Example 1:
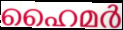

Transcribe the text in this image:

ഹൈമർ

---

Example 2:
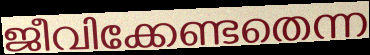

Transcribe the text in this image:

ജീവിക്കേണ്ടതെന്ന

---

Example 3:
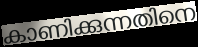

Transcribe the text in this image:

കാണിക്കുന്നതിനെ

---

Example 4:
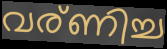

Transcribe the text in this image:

വര്ണിച്ച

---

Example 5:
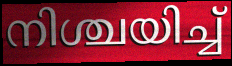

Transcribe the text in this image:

നിശ്ചയിച്ച്